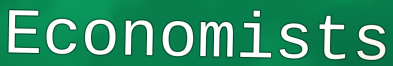
Economists